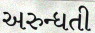
અરુન્ધતી